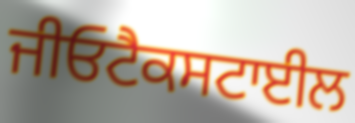
ਜੀਓਟੈਕਸਟਾਈਲ